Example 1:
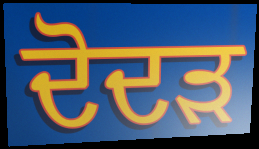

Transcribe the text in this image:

ਦੋਦੜ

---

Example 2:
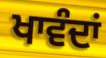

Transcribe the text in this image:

ਖਾਵੰਦਾਂ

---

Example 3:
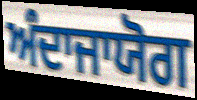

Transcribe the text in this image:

ਅੰਦਾਜਾਯੋਗ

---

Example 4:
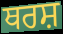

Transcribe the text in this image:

ਥਰਸ਼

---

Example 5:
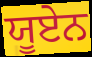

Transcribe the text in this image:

ਯੂਏਨ